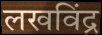
लखविंद्र